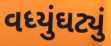
વધ્યુંઘટ્યું